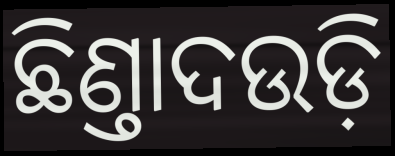
ଛିଣ୍ତାଦଉଡ଼ି